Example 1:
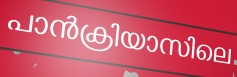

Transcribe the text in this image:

പാൻക്രിയാസിലെ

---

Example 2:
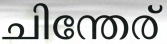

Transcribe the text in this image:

ചിന്തേര്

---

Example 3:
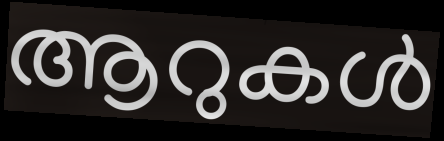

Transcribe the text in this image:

ആറുകൾ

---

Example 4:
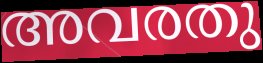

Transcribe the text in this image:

അവരതു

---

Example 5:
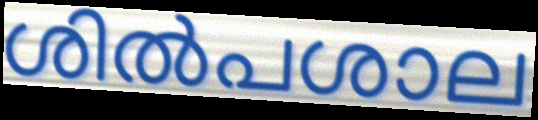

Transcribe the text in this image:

ശിൽപശാല